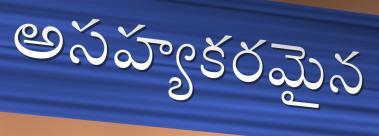
అసహ్యకరమైన